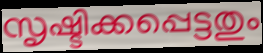
സൃഷ്ടിക്കപ്പെട്ടതും